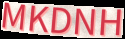
MKDNH